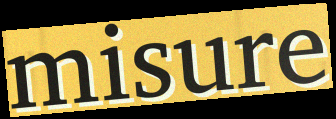
misure